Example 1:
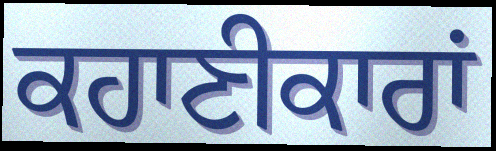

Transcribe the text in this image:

ਕਹਾਣੀਕਾਰਾਂ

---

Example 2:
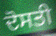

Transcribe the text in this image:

ਦੋਸਤੀ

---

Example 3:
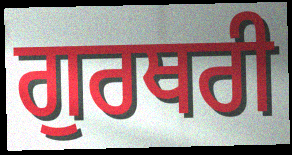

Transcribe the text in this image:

ਗੁਰਥਰੀ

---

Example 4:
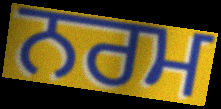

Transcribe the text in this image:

ਨਰਮ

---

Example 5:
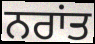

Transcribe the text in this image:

ਨਰਾਂਤ